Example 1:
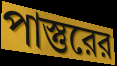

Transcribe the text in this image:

পাস্তুরের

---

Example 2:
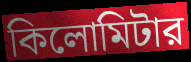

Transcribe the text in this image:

কিলোমিটার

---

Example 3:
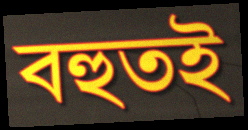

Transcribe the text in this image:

বহুতই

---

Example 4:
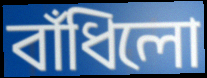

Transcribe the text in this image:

বাঁধিলো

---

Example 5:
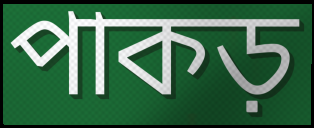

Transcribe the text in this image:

পাকড়